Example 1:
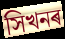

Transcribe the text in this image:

সিখনৰ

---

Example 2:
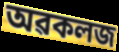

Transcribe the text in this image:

অৱকলজ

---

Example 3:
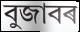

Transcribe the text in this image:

বুজাবৰ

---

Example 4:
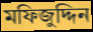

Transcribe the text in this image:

মফিজুদ্দিন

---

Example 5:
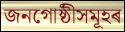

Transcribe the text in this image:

জনগোষ্ঠীসমূহৰ